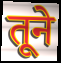
तूने